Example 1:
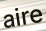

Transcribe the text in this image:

aire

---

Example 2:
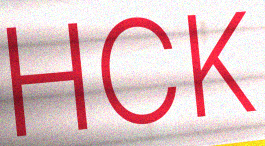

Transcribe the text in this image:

HCK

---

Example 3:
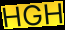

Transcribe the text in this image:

HGH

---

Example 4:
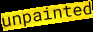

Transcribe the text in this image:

unpainted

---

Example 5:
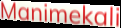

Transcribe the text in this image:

Manimekali